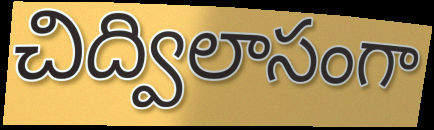
చిద్విలాసంగా